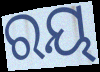
ରୟ